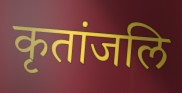
कृतांजलि